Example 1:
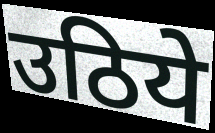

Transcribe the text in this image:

उठिये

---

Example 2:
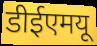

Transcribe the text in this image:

डीईएमयू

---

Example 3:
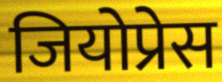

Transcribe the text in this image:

जियोप्रेस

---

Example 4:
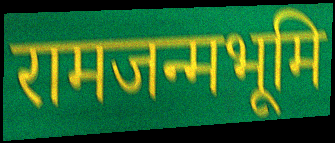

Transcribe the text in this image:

रामजन्मभूमि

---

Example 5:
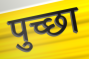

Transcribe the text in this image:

पुच्छा